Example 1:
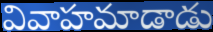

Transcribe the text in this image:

వివాహమాడాడు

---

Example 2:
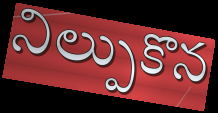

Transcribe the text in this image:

నిల్పుకొన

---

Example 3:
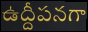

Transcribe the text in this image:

ఉద్దీపనగా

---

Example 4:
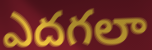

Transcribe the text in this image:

ఎదగలా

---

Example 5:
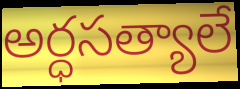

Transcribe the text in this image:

అర్ధసత్యాలే